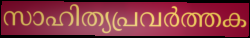
സാഹിത്യപ്രവർത്തക